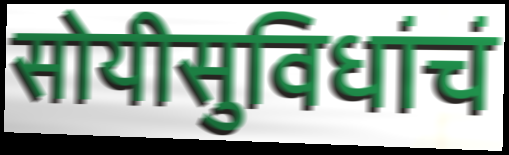
सोयीसुविधांचं